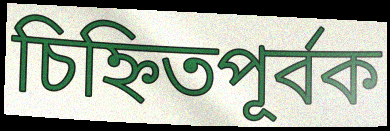
চিহ্নিতপূর্বক